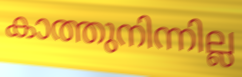
കാത്തുനിന്നില്ല